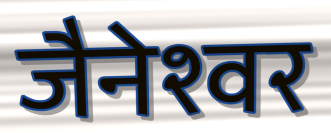
जैनेश्वर